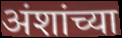
अंशांच्या